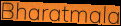
Bharatmala